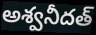
అశ్వనీదత్